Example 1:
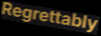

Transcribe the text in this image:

Regrettably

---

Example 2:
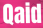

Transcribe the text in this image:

Qaid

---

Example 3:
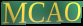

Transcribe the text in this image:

MCAO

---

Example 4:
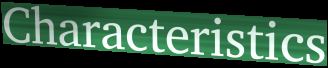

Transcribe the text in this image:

Characteristics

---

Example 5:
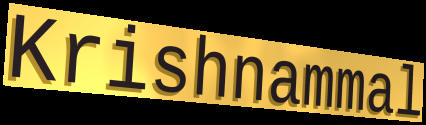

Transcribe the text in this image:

Krishnammal